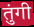
तुंगी